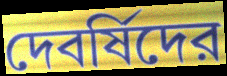
দেবর্ষিদের